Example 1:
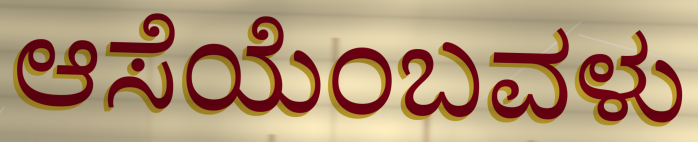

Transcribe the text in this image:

ಆಸೆಯೆಂಬವಳು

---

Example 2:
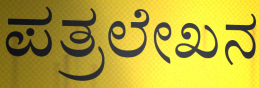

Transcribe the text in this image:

ಪತ್ರಲೇಖನ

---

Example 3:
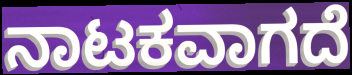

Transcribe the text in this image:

ನಾಟಕವಾಗದೆ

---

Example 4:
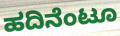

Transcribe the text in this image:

ಹದಿನೆಂಟೂ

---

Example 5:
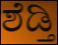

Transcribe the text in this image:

ಶೆಡ್ತಿ